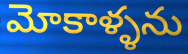
మోకాళ్ళను